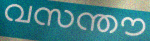
വസന്തൗ